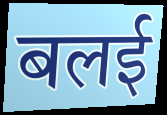
बलई